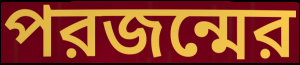
পরজন্মের